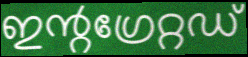
ഇന്റഗ്രേറ്റഡ്